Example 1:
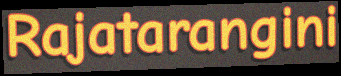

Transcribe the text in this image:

Rajatarangini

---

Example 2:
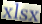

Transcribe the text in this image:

xlsx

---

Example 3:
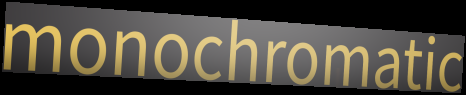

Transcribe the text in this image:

monochromatic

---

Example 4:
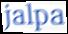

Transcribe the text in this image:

jalpa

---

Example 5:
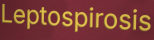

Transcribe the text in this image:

Leptospirosis